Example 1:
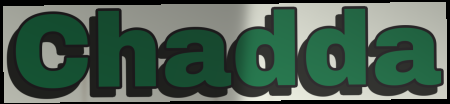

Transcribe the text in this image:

Chadda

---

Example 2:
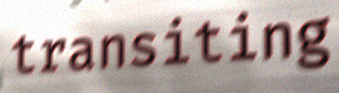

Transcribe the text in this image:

transiting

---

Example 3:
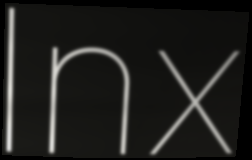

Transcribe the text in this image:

lnx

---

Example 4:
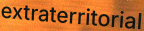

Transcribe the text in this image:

extraterritorial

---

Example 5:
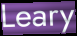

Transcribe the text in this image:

Leary